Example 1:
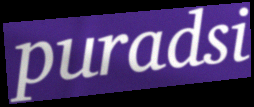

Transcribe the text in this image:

puradsi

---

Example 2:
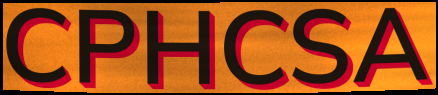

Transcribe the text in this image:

CPHCSA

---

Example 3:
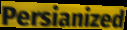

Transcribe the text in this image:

Persianized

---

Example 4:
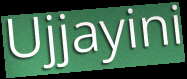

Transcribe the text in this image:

Ujjayini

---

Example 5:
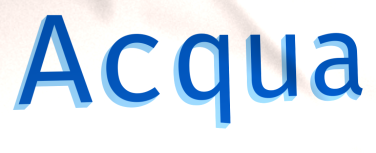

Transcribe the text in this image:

Acqua